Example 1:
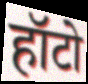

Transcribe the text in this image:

हॉटो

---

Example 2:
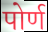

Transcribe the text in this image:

पोर्ण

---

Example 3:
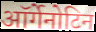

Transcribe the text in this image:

ऑर्गेनोटिन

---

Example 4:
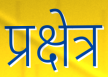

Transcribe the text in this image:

प्रक्षेत्र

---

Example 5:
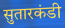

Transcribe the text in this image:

सुतारकंडी